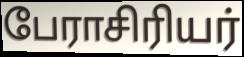
பேராசிரியர்